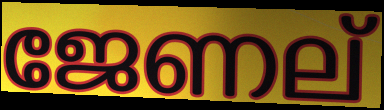
ജേണല്